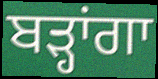
ਬੜ੍ਹਾਂਗਾ